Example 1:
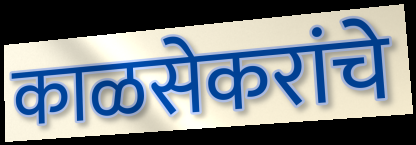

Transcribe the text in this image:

काळसेकरांचे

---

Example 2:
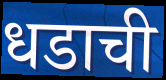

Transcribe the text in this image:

धडाची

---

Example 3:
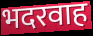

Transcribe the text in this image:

भदरवाह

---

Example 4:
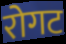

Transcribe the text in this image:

रोगट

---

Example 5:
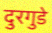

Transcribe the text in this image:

दुरगुडे